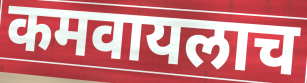
कमवायलाच